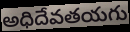
అధిదేవతయగు